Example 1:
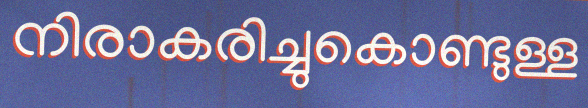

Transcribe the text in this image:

നിരാകരിച്ചുകൊണ്ടുള്ള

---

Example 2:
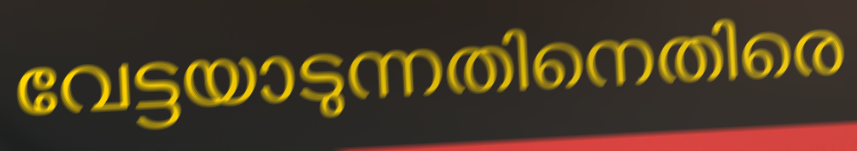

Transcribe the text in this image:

വേട്ടയാടുന്നതിനെതിരെ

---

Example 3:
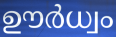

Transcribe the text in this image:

ഊർധ്വം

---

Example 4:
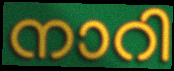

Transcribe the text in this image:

നാറി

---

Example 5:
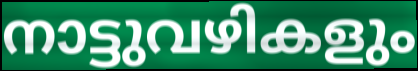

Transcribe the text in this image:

നാട്ടുവഴികളും